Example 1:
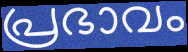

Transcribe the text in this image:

പ്രഭാവം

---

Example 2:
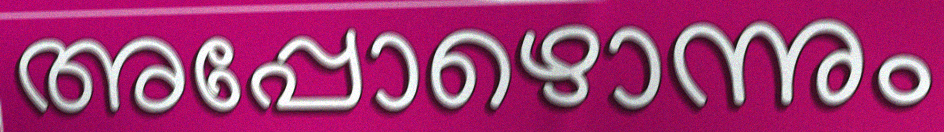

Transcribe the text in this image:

അപ്പോഴൊന്നും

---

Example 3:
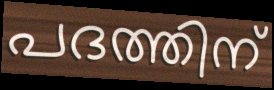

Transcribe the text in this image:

പദത്തിന്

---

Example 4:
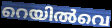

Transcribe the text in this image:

റെയിൽവെ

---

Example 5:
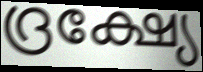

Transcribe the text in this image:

ദ്രക്ഷ്യേ